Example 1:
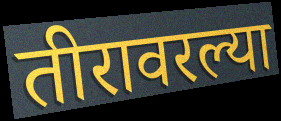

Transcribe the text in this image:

तीरावरल्या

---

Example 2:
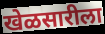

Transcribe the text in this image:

खेळसारीला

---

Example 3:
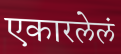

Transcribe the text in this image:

एकारलेलं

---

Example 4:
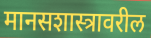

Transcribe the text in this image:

मानसशास्त्रावरील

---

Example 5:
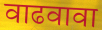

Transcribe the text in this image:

वाढवावा